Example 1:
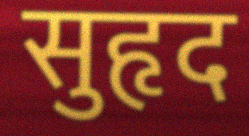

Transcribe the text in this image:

सुहृद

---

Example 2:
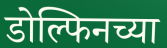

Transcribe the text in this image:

डोल्फिनच्या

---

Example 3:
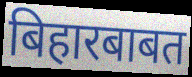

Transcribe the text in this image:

बिहारबाबत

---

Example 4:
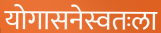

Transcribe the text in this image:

योगासनेस्वतःला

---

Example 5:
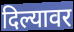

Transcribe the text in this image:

दिल्यावर